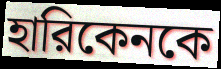
হারিকেনকে